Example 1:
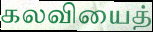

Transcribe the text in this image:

கலவியைத்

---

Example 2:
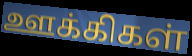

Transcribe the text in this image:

ஊக்கிகள்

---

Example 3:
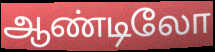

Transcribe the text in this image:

ஆண்டிலோ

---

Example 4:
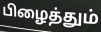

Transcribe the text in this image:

பிழைத்தும்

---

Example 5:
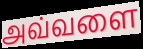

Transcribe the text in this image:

அவ்வளை